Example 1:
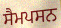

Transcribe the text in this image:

ਸੈਮਪਸਨ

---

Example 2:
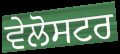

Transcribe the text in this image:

ਵੇਲੋਸਟਰ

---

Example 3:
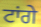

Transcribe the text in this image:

ਟਾਂਗੇ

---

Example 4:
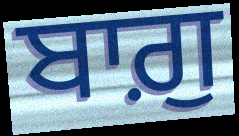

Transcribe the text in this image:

ਬਾਗ਼ੁ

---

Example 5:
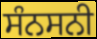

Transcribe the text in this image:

ਸੰਨਸਨੀ